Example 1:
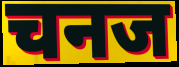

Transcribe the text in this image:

चनज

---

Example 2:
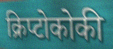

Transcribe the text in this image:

क्रिप्टोकोकी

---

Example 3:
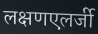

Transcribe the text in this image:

लक्षणएलर्जी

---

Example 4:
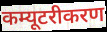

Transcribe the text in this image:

कम्यूटरीकरण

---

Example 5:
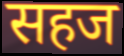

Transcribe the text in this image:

सहज